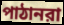
পাঠানরা